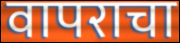
वापराचा